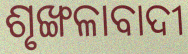
ଶୃଙ୍ଖଳାବାଦୀ